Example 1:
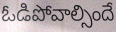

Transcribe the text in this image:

ఓడిపోవాల్సిందే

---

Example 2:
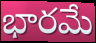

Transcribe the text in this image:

భారమే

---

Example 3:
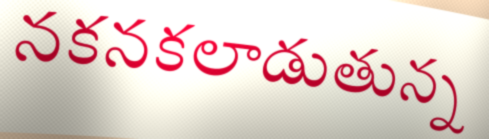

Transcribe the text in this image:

నకనకలాడుతున్న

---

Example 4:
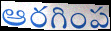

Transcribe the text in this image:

ఆరగింప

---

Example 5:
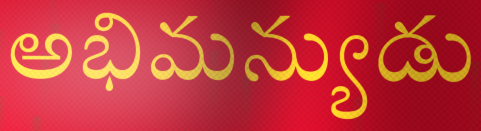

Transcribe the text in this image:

అభిమన్యుడు